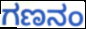
ಗಣನಂ